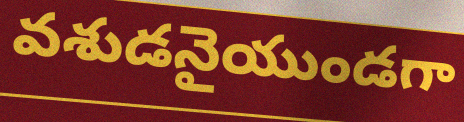
వశుడనైయుండగా